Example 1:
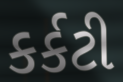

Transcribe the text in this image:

કર્કટી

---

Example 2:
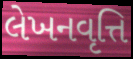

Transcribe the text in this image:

લેખનવૃત્તિ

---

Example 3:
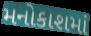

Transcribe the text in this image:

મનોકાશમાં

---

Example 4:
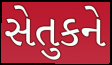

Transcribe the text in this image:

સેતુકને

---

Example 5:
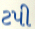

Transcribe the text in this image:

ટપી